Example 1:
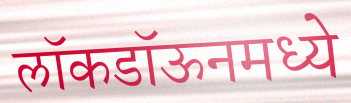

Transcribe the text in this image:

लॉकडॉऊनमध्ये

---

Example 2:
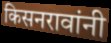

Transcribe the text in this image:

किसनरावांनी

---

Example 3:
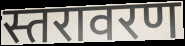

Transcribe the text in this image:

स्तरावरण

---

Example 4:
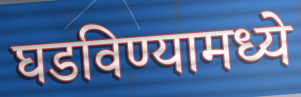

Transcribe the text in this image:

घडविण्यामध्ये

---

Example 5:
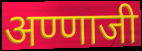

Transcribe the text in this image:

अण्णाजी